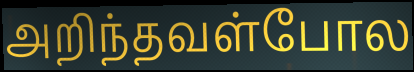
அறிந்தவள்போல